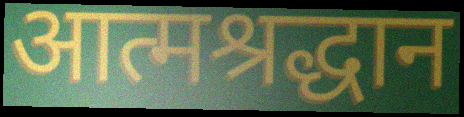
आत्मश्रद्धान